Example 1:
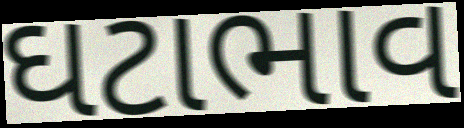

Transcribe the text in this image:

ઘટાભાવ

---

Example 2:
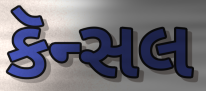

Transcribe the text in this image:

કૅન્સલ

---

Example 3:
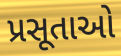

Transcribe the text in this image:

પ્રસૂતાઓ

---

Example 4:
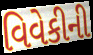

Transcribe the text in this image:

વિવેકીની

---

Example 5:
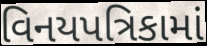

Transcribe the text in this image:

વિનયપત્રિકામાં